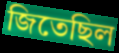
জিতেছিল